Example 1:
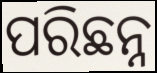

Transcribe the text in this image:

ପରିଛନ୍ନ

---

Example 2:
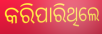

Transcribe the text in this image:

କରିପାରିଥିଲେ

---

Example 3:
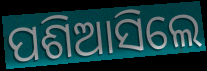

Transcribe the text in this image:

ପଶିଆସିଲେ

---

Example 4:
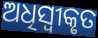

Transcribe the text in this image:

ଅଧିସ୍ୱୀକୃତ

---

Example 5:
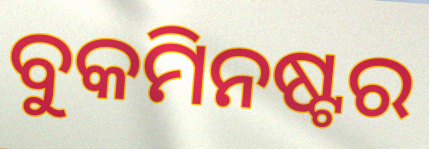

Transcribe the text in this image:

ବୁକମିନଷ୍ଟର